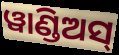
ୱାଣ୍ଡିଅସ୍